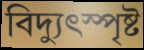
বিদ্যুৎস্পৃষ্ট